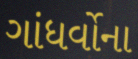
ગાંધર્વોના